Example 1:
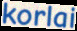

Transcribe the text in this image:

korlai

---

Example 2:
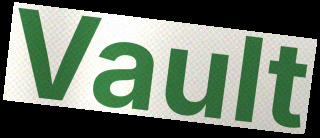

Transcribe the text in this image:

Vault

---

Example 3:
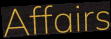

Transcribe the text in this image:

Affairs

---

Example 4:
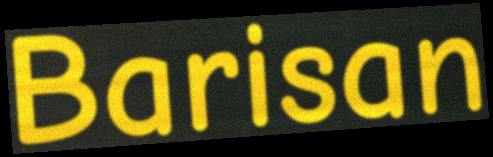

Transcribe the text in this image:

Barisan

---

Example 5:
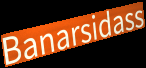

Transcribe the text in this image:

Banarsidass